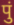
पुं